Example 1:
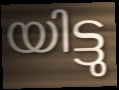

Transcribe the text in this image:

യിട്ടു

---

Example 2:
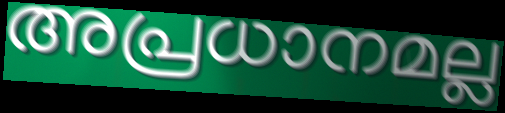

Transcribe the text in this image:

അപ്രധാനമല്ല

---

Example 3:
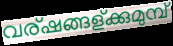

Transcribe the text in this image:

വര്ഷങ്ങള്ക്കുമുമ്പ്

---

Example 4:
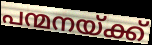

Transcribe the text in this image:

പന്മനയ്ക്ക്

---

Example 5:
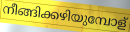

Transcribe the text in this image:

നീങ്ങിക്കഴിയുമ്പോള്